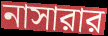
নাসারার